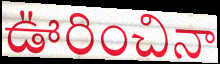
ఊరించినా